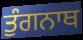
ਤੁੰਗਨਾਥ